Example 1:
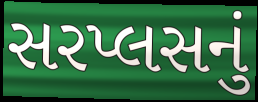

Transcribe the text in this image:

સરપ્લસનું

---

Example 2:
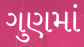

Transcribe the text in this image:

ગુણમાં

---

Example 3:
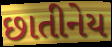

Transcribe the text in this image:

છાતીનેય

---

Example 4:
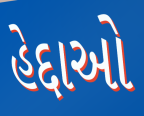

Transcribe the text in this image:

હેદ્દાઓ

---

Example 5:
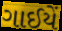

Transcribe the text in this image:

ગાઈયેં